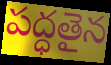
పద్ధతైన